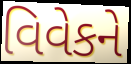
વિવેકને